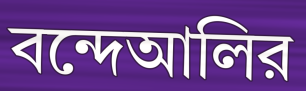
বন্দেআলির